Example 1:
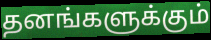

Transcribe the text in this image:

தனங்களுக்கும்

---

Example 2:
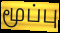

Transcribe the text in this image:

மூப்பு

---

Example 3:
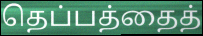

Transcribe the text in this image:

தெப்பத்தைத்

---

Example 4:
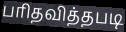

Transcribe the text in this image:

பரிதவித்தபடி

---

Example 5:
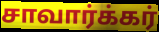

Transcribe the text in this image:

சாவார்க்கர்